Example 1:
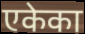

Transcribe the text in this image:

एकेका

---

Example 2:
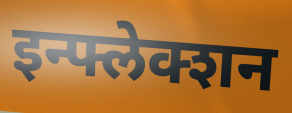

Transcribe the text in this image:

इन्फ्लेक्शन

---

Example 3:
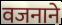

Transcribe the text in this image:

वजनाने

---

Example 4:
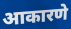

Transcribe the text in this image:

आकारणे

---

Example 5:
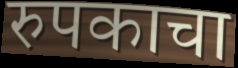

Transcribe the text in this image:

रुपकाचा